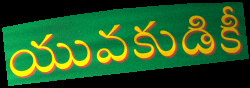
యువకుడికీ